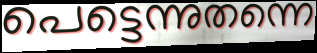
പെട്ടെന്നുതന്നെ